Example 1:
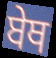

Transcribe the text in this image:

ਬੇਥ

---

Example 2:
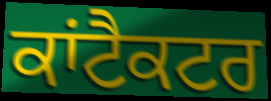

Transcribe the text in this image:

ਕਾਂਟੈਕਟਰ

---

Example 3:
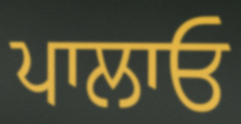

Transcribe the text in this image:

ਪਾਲਾਓ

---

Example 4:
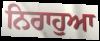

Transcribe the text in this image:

ਨਿਰਾਹੁਆ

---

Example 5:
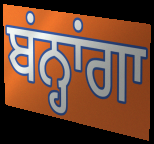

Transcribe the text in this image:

ਬਂਨ੍ਹਾਂਗਾ